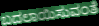
ಬದಲಾಯಿಸುವಂತೆ